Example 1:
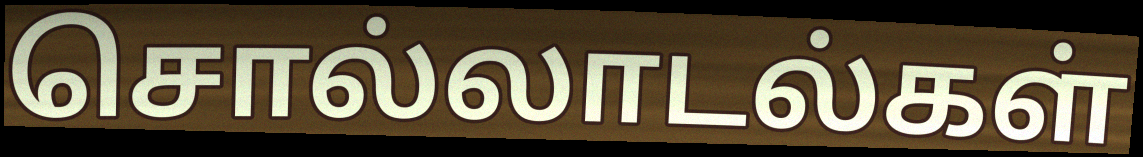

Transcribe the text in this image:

சொல்லாடல்கள்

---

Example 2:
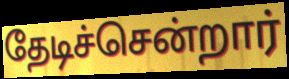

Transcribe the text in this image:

தேடிச்சென்றார்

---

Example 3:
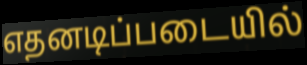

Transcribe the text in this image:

எதனடிப்படையில்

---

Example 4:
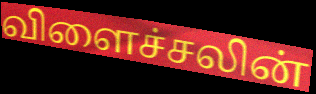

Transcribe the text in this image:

விளைச்சலின்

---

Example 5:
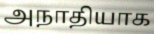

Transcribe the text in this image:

அநாதியாக